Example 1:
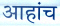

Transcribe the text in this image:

आहांच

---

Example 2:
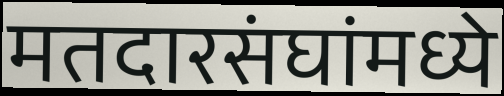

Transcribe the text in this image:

मतदारसंघांमध्ये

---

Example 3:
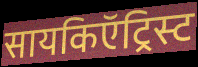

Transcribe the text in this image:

सायकिऍट्रिस्ट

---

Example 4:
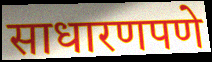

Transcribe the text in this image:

साधारणपणे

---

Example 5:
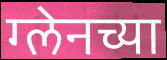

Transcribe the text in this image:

ग्लेनच्या